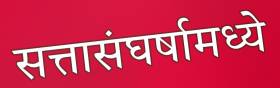
सत्तासंघर्षामध्ये